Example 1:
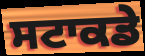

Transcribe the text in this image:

ਸਟਾਕਡੇ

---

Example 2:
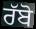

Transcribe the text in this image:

ਰੱਬੋ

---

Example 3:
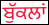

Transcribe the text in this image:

ਬੁੱਕਲਾਂ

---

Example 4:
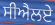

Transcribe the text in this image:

ਸੀਐਲਏ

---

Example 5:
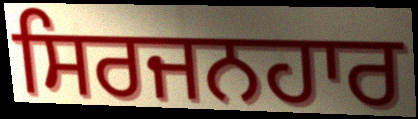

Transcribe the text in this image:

ਸਿਰਜਨਹਾਰ